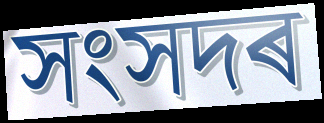
সংসদৰ